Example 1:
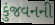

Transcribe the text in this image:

કુંજવનની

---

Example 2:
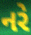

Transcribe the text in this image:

નરે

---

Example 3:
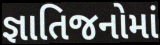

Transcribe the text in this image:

જ્ઞાતિજનોમાં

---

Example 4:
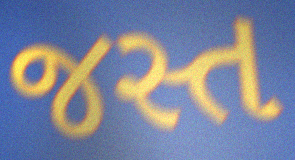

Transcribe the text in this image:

જસ્ત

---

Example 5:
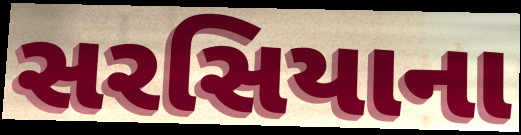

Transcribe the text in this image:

સરસિયાના